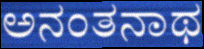
ಅನಂತನಾಥ